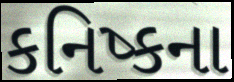
કનિષ્કના